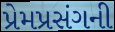
પ્રેમપ્રસંગની